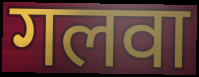
गलवा